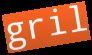
gril